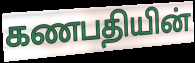
கணபதியின்